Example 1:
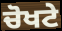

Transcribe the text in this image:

ਚੋਖਟੇ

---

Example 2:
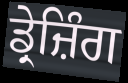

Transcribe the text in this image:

ਡ੍ਰੇਜ਼ਿੰਗ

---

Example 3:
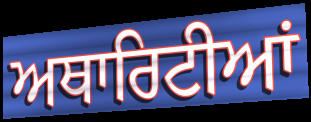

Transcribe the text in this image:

ਅਥਾਰਿਟੀਆਂ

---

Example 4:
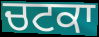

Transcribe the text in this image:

ਚਟਕਾ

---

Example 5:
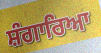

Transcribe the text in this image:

ਸ਼ੰਗਾਰਿਆ